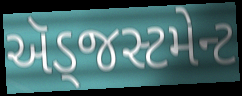
ઍડ્જસ્ટમેન્ટ